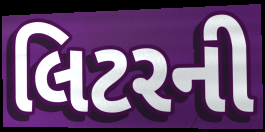
લિટરની